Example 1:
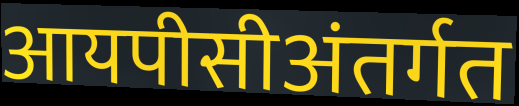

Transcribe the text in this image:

आयपीसीअंतर्गत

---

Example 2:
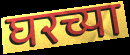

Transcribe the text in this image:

घरच्या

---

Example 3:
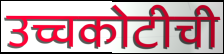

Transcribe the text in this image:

उच्चकोटीची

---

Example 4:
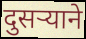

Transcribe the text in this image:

दुसर्‍याने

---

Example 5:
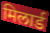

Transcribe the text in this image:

मिलार्ड